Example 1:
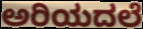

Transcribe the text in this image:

ಅರಿಯದಲೆ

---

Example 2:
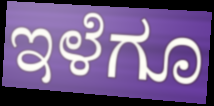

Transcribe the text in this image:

ಇಳೆಗೂ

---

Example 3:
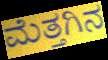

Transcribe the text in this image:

ಮೆತ್ತಗಿನ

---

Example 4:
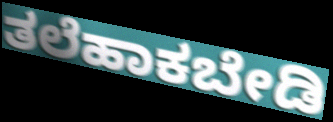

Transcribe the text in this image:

ತಲೆಹಾಕಬೇಡಿ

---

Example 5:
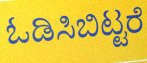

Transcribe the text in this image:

ಓಡಿಸಿಬಿಟ್ಟರೆ